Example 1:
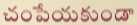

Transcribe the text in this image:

చంపేయకుండా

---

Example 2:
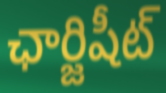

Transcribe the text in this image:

ఛార్జిషీట్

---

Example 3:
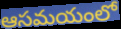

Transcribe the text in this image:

ఆసమయంలో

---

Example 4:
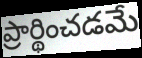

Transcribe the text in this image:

ప్రార్థించడమే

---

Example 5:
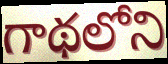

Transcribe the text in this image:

గాథలోని